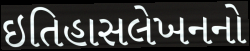
ઇતિહાસલેખનનો